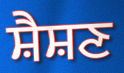
ਸ਼ੈਸ਼ਣ